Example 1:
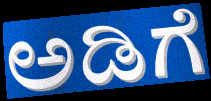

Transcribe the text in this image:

ಅಡಿಗೆ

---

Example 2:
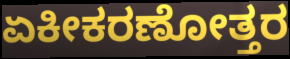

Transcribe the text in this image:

ಏಕೀಕರಣೋತ್ತರ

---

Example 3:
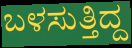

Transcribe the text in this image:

ಬಳಸುತ್ತಿದ್ದ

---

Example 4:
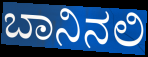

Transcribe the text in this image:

ಬಾನಿನಲಿ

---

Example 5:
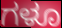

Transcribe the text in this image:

ಗಳೂ